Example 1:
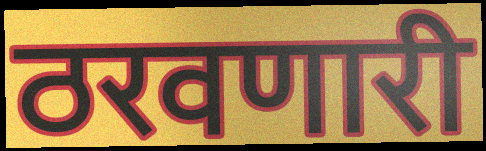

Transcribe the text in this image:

ठरवणारी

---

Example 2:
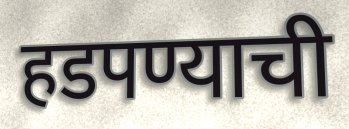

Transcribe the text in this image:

हडपण्याची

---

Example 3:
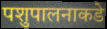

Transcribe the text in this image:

पशुपालनाकडे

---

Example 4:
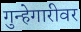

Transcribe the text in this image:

गुन्हेगारीवर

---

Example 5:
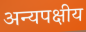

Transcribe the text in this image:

अन्यपक्षीय